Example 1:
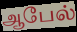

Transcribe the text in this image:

ஆபேல்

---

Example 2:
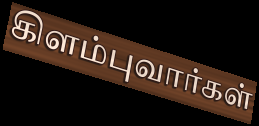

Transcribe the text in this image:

கிளம்புவார்கள்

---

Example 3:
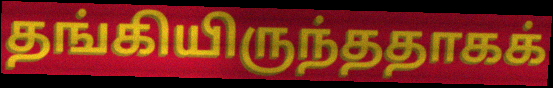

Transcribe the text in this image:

தங்கியிருந்ததாகக்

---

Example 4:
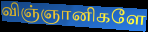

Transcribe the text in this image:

விஞ்ஞானிகளே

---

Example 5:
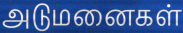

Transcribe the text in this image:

அடுமனைகள்